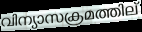
വിന്യാസക്രമത്തില്